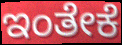
ಇಂತೇಕೆ